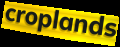
croplands